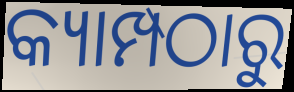
କ୍ୟାମ୍ପଠାରୁ